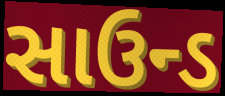
સાઉન્ડ